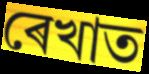
ৰেখাত